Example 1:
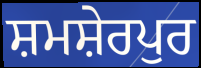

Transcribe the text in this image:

ਸ਼ਮਸ਼ੇਰਪੁਰ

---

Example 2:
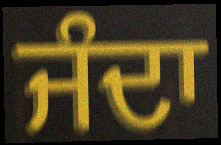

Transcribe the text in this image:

ਜੰਦਾ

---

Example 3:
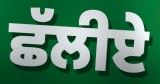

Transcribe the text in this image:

ਛੱਲੀਏ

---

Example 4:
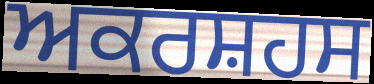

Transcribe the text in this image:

ਅਕਰਸ਼ਹਸ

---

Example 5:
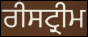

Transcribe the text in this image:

ਰੀਸਟ੍ਰੀਮ